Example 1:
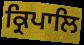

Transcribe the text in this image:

ਕ੍ਰਿਪਾਲਿ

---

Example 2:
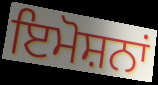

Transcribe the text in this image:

ਇਮੋਸ਼ਨਾਂ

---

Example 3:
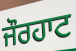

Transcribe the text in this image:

ਜੌਰਹਾਟ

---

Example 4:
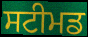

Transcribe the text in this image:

ਸਟੀਮਡ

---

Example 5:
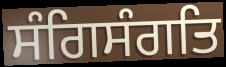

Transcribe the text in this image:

ਸੰਗਿਸੰਗਤਿ